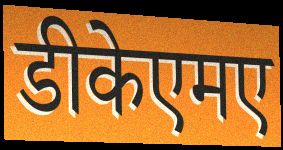
डीकेएमए